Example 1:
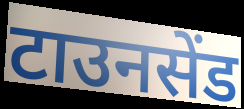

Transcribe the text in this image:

टाउनसेंड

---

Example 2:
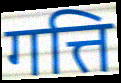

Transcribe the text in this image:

गत्ति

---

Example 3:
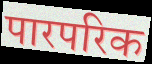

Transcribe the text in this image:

पारपरिक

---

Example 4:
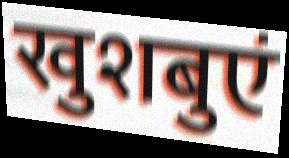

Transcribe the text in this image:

खुशबुएं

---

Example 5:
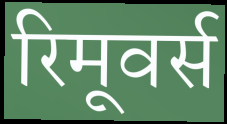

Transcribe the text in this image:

रिमूवर्स